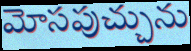
మోసపుచ్చును